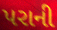
પરાની